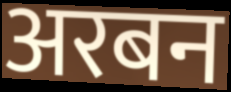
अरबन